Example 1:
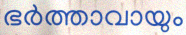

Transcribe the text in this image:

ഭർത്താവായും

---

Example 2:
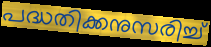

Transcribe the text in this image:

പദ്ധതിക്കനുസരിച്ച്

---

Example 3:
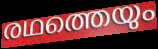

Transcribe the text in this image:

രഥത്തെയും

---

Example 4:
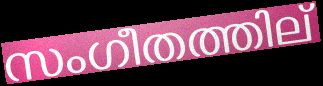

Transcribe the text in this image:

സംഗീതത്തില്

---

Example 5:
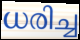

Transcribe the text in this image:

ധരിച്ച